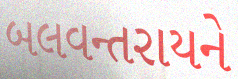
બલવન્તરાયને